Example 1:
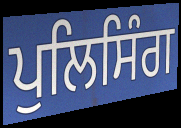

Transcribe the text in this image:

ਪੁਲਿਸਿੰਗ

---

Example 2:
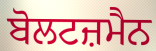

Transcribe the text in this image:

ਬੋਲਟਜ਼ਮੈਨ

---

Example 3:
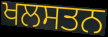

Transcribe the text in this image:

ਖਲਸਤਨ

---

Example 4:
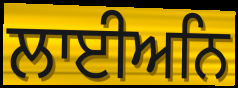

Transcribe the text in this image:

ਲਾਈਅਨਿ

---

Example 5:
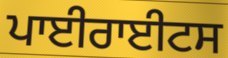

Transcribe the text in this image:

ਪਾਈਰਾਈਟਸ